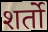
शर्तो